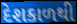
દેશકાળથી